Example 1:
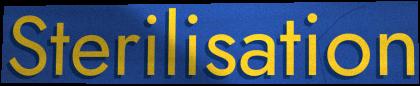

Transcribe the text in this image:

Sterilisation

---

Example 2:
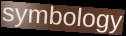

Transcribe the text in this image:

symbology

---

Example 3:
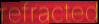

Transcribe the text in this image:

refracted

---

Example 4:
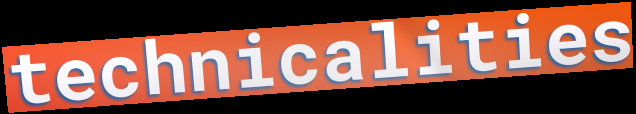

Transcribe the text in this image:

technicalities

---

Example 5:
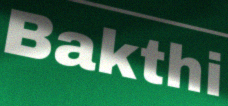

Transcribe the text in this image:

Bakthi